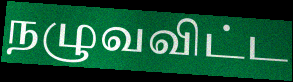
நழுவவிட்ட